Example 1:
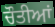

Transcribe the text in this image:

ਚੌਤੀਆਂ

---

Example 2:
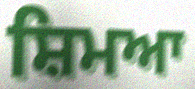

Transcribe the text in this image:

ਸ਼ਿਮਆ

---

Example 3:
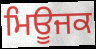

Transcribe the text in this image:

ਮਿਊਜਕ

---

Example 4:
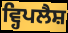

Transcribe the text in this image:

ਵ੍ਹਿਪਲੈਸ਼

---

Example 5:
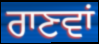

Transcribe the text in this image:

ਰਾਣਵਾਂ